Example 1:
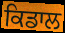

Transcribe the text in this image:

ਕਿਡਾਲ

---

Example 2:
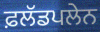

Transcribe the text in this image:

ਫ਼ਲੱਡਪਲੇਨ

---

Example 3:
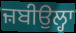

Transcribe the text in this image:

ਜ਼ਬੀਉਲ੍ਹਾ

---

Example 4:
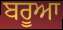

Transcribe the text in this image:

ਬਰੂਆ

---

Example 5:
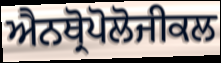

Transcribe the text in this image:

ਐਨਥ੍ਰੋਪੋਲੋਜੀਕਲ